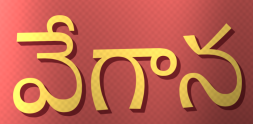
వేగాన